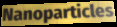
Nanoparticles